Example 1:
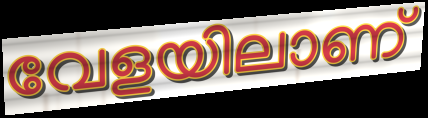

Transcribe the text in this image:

വേളയിലാണ്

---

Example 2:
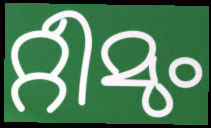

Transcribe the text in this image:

റ്റീമും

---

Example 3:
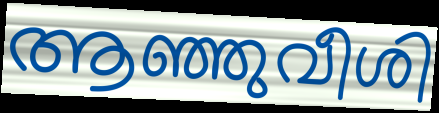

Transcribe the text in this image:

ആഞ്ഞുവീശി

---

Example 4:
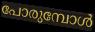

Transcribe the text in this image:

പോരുമ്പോൾ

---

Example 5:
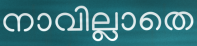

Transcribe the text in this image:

നാവില്ലാതെ